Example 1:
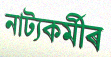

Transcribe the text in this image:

নাট্যকৰ্মীৰ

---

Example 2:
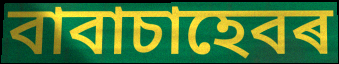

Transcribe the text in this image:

বাবাচাহেবৰ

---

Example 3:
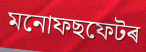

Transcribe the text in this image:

মনোফছফেটৰ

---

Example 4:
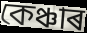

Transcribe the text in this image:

কেঞ্চাৰ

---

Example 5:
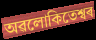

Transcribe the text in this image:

অৱলোকিতেশ্বৰ